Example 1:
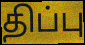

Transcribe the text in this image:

திப்பு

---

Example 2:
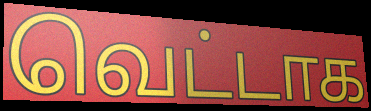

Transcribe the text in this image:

வெட்டாக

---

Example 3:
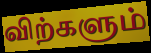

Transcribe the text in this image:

விற்களும்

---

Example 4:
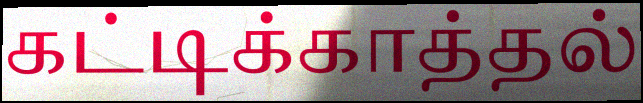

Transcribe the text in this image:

கட்டிக்காத்தல்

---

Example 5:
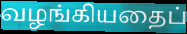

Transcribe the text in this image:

வழங்கியதைப்